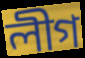
লীগ